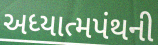
અધ્યાત્મપંથની